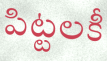
పిట్టలకీ